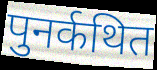
पुनर्कथित